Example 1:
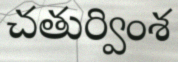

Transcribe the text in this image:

చతుర్వింశ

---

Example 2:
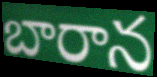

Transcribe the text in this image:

బారాన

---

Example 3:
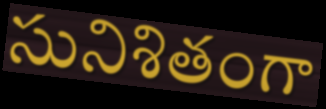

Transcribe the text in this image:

సునిశితంగా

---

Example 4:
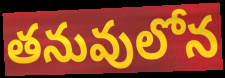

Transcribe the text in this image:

తనువులోన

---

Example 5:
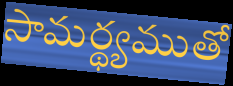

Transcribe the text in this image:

సామర్థ్యముతో